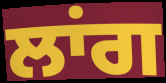
ਲਾਂਗ